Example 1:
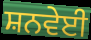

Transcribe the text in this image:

ਸ਼ਨਵੇਈ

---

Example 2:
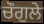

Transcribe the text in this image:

ਚੌਗੁਲੇ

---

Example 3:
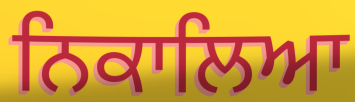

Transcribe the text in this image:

ਨਿਕਾਲਿਆ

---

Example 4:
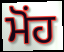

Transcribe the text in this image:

ਮੋਂਹ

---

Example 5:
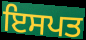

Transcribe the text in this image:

ਇਸਪਤ